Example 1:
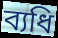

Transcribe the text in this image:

ব্যধি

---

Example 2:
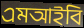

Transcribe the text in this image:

এমআইবি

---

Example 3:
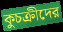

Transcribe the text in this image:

কুচক্রীদের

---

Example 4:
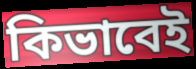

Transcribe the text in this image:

কিভাবেই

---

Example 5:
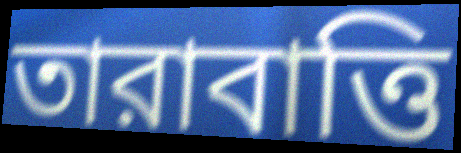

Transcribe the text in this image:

তারাবাত্তি